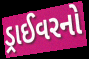
ડ્રાઈવરનો